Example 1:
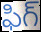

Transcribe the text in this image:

ఫిగ్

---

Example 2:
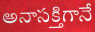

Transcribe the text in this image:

అనాసక్తిగానే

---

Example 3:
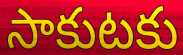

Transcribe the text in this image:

సాకుటకు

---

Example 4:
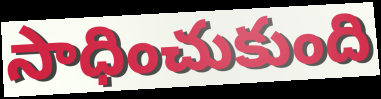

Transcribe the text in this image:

సాధించుకుంది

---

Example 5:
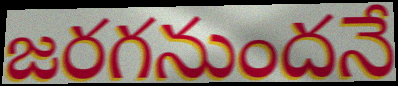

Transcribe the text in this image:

జరగనుందనే